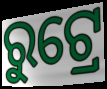
ରୁଟ୍ରେ